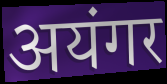
अयंगर